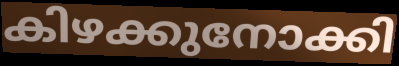
കിഴക്കുനോക്കി